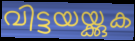
വിട്ടയയ്ക്കുക